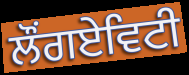
ਲੌਂਗਏਵਿਟੀ